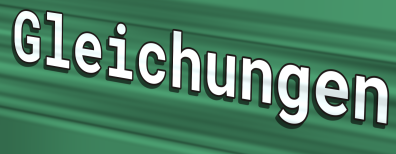
Gleichungen